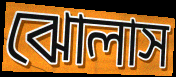
ঝোলাস